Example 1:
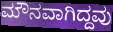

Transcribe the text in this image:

ಮೌನವಾಗಿದ್ದವು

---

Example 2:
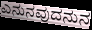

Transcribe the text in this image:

ಎನುನವುದನುನ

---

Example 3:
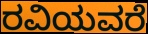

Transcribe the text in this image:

ರವಿಯವರೆ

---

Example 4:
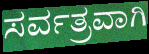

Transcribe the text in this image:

ಸರ್ವತ್ರವಾಗಿ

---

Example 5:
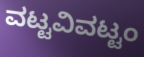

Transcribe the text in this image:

ವಟ್ಟವಿವಟ್ಟಂ